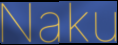
Naku